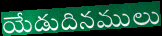
యేడుదినములు